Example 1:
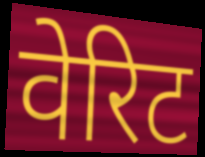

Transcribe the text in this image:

वेरिट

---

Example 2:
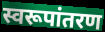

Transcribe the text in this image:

स्वरूपांतरण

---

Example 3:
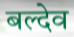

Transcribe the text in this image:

बल्देव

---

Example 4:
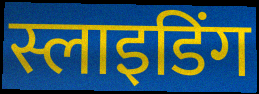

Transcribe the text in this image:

स्लाइडिंग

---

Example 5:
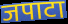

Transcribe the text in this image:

जपाटा